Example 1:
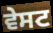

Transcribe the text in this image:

ਵੇਸਟ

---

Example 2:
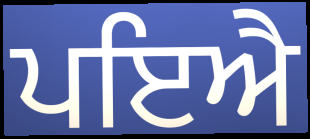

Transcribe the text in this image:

ਪਇਐ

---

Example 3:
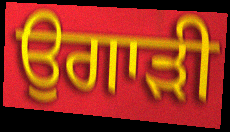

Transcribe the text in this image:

ਉਗਾੜੀ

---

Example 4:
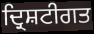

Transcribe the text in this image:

ਦ੍ਰਿਸ਼ਟੀਗਤ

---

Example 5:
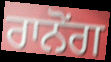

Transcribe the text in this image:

ਰਾਨੋਂਗ